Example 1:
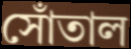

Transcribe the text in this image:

সোঁতাল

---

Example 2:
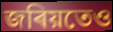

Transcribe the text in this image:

জৰিয়তেও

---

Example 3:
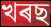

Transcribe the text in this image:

খৰছ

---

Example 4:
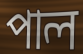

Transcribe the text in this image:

পাল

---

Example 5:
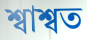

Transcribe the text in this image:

শ্বাশ্বত